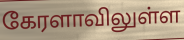
கேரளாவிலுள்ள